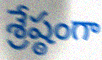
శ్రేష్ఠంగా